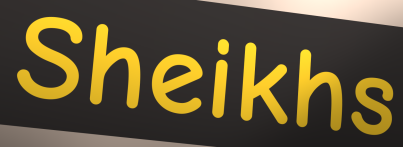
Sheikhs